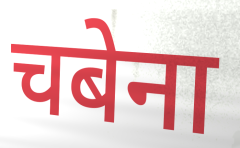
चबेना